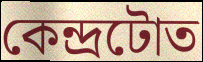
কেন্দ্ৰটোত